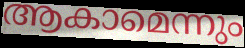
ആകാമെന്നും